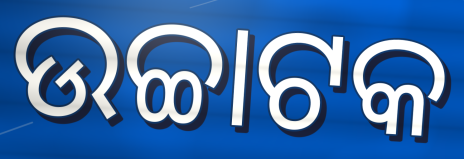
ଉଚ୍ଚାଟକ